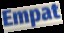
Empat